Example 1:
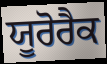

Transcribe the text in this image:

ਯੂਰੋਰੈਕ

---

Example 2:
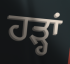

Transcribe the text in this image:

ਹੜ੍ਹਾਂ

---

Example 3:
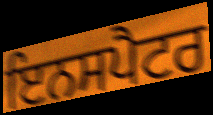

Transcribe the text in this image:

ਇਨਸਪੈਟਰ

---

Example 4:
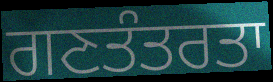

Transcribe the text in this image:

ਗਣਤੰਤਰਤਾ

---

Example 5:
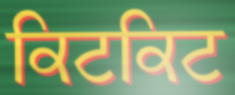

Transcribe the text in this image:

ਕਿਟਕਿਟ